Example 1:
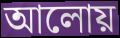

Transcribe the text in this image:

আলোয়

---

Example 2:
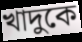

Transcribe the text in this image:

খাদুকে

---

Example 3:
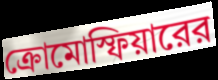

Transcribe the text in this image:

ক্রোমোস্ফিয়ারের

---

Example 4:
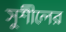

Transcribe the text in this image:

সুশীলের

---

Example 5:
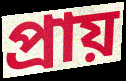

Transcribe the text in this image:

প্রায়